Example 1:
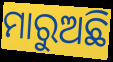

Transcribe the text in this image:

ମାରୁଅଛି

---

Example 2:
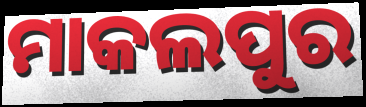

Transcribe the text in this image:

ମାକଲପୁର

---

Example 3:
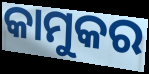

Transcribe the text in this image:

କାମୁକର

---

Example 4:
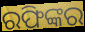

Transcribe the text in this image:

ରଫିଙ୍କର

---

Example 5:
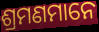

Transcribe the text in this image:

ଶ୍ରମଣମାନେ